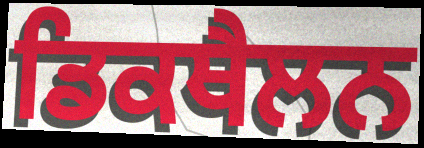
ਡਿਕਥੈਲਨ